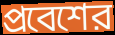
প্রবেশের